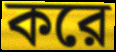
করে